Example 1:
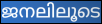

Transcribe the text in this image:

ജനലിലൂടെ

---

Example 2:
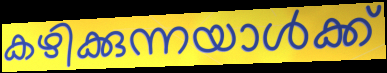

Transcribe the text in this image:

കഴിക്കുന്നയാൾക്ക്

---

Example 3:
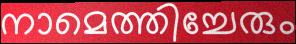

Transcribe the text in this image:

നാമെത്തിച്ചേരും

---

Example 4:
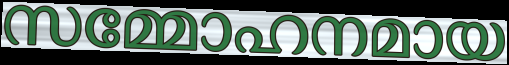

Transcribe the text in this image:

സമ്മോഹനമായ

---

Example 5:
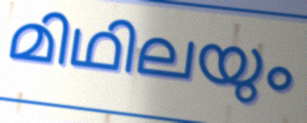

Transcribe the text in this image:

മിഥിലയും